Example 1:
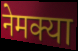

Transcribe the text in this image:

नेमक्या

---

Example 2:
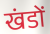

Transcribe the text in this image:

खंडों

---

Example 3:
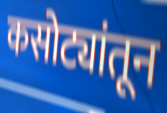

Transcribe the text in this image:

कसोट्यांतून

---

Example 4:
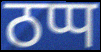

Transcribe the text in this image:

ठप्प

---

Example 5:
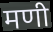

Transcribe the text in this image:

मणी